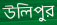
উলিপুর